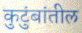
कुटुंबांतील